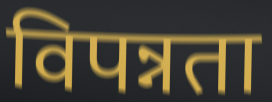
विपन्नता